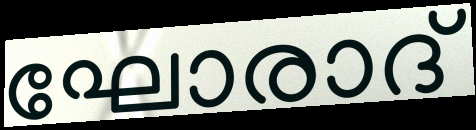
ഘോരാദ്